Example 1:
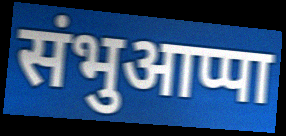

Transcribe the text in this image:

संभुआप्पा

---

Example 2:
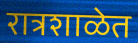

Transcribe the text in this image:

रात्रशाळेत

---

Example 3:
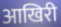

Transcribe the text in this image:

आखिरी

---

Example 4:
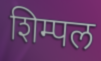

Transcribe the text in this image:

शिम्पल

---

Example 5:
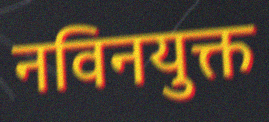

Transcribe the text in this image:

नविनयुक्त